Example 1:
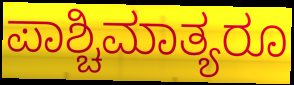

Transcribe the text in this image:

ಪಾಶ್ಚಿಮಾತ್ಯರೂ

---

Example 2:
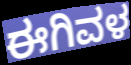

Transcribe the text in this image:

ಈಗಿವಳ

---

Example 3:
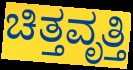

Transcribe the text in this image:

ಚಿತ್ತವೃತ್ತಿ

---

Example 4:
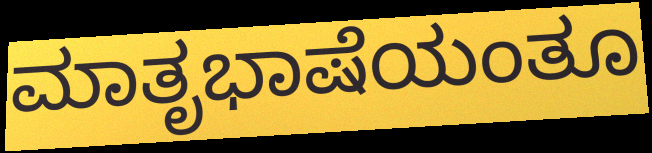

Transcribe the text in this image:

ಮಾತೃಭಾಷೆಯಂತೂ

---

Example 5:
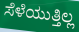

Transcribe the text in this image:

ಸೆಳೆಯುತ್ತಿಲ್ಲ